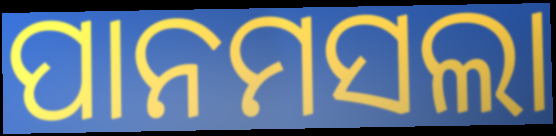
ପାନମସଲା